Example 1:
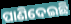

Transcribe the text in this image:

ପାଣିଦେଇଛି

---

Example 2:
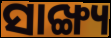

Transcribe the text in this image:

ସାଙ୍ଖ୍ୟ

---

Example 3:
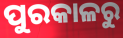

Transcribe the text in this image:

ପୁରକାଳରୁ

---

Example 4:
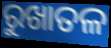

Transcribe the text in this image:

ରୁଖାତଳ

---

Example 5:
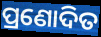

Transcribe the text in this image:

ପ୍ରଣୋଦିତ